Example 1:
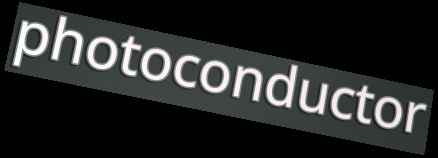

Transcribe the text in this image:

photoconductor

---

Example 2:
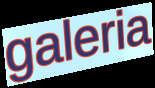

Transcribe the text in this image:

galeria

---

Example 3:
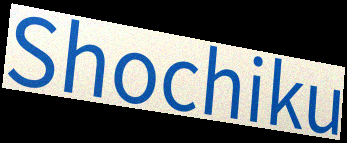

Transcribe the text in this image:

Shochiku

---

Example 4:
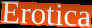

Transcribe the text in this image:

Erotica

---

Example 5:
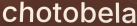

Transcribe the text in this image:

chotobela